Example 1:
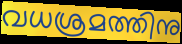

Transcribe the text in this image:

വധശ്രമത്തിനു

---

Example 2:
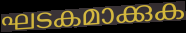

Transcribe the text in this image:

ഘടകമാക്കുക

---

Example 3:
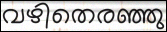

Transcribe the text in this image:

വഴിതെരഞ്ഞു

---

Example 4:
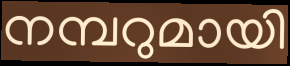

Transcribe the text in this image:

നമ്പറുമായി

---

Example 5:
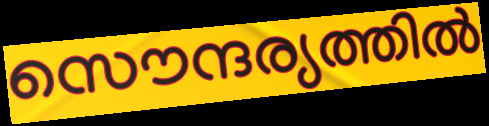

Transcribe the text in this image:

സൌന്ദര്യത്തിൽ